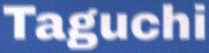
Taguchi